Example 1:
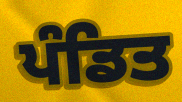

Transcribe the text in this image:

ਪੰਡਿਤ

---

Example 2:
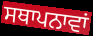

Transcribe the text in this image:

ਸਥਾਪਨਾਵਾਂ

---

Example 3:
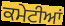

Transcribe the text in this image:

ਕਮੇਟੀਆਂ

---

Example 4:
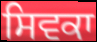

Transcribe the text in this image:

ਸਿਵਕਾ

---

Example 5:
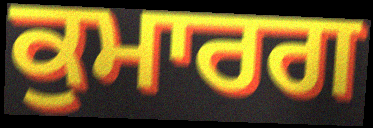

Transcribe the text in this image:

ਕੁਮਾਰਗ